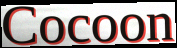
Cocoon